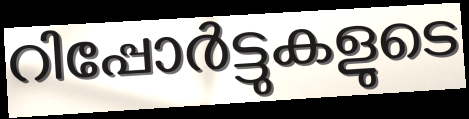
റിപ്പോർട്ടുകളുടെ